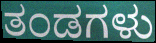
ತಂಡಗಳು